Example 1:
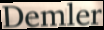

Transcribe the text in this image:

Demler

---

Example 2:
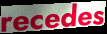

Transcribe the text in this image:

recedes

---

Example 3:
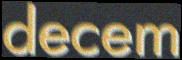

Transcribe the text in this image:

decem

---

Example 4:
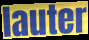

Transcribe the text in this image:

lauter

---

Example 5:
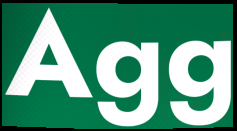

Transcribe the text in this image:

Agg